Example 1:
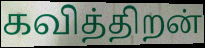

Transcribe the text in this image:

கவித்திறன்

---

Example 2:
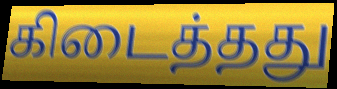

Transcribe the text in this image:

கிடைத்தது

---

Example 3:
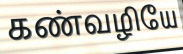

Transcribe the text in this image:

கண்வழியே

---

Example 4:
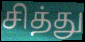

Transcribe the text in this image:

சித்து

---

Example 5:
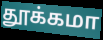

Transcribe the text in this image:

தூக்கமா